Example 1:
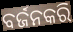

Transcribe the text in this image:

ବର୍ଜନକରି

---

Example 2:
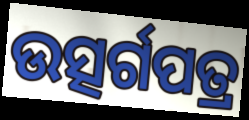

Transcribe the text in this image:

ଉତ୍ସର୍ଗପତ୍ର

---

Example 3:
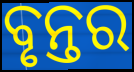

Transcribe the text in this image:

ବୃନ୍ତର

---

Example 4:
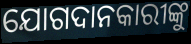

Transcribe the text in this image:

ଯୋଗଦାନକାରୀଙ୍କୁ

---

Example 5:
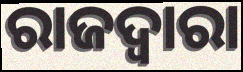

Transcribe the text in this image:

ରାଜଦ୍ୱାରା